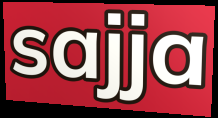
sajja